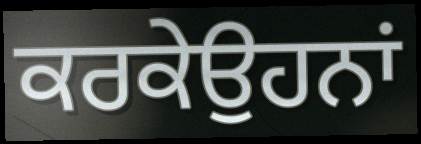
ਕਰਕੇਉਹਨਾਂ